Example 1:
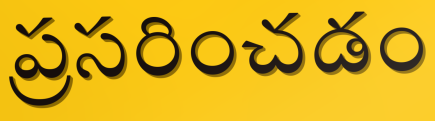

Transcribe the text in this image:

ప్రసరించడం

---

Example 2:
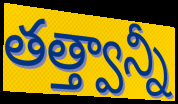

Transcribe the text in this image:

తత్త్వాన్నీ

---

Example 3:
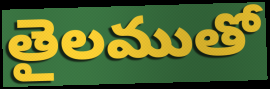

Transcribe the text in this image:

తైలముతో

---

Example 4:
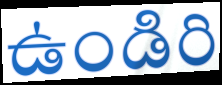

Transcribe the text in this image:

ఉండిరి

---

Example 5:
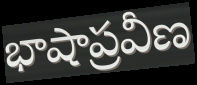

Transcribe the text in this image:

భాషాప్రవీణ